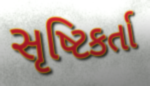
સૃષ્ટિકર્તા